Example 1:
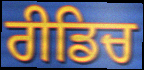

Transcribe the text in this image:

ਰੀਡਿਚ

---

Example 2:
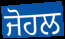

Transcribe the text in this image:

ਜੋਹਲ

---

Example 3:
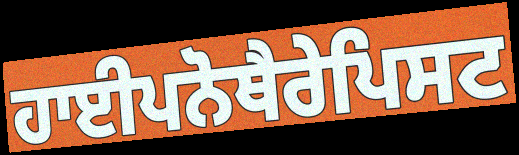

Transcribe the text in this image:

ਹਾਈਪਨੋਥੈਰੇਪਿਸਟ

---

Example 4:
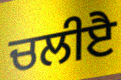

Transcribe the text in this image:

ਚਲੀੲੈ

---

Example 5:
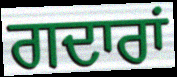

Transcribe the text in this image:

ਗਦਾਰਾਂ